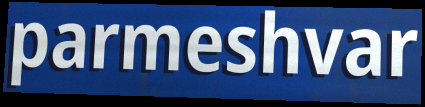
parmeshvar